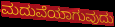
ಮದುವೆಯಾಗುವುದು